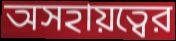
অসহায়ত্বের